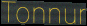
Tonnur